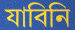
যাবিনি